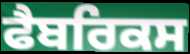
ਫੈਬਰਿਕਸ